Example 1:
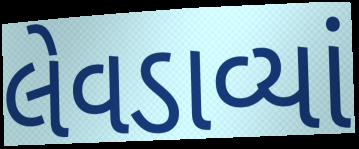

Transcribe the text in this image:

લેવડાવ્યાં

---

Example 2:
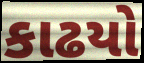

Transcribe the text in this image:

કાઢયો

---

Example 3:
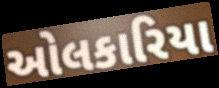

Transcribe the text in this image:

ઓલકારિયા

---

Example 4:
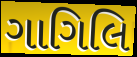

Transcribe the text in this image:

ગાગિલિ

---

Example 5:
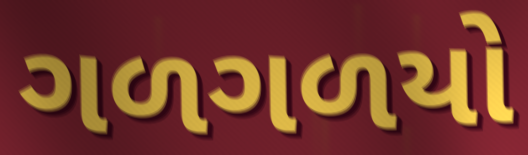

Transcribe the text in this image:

ગળગળયો